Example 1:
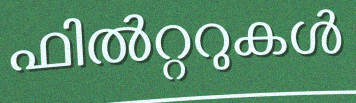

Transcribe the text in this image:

ഫിൽറ്ററുകൾ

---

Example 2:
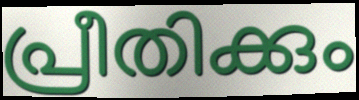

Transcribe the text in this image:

പ്രീതിക്കും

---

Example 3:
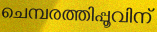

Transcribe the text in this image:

ചെമ്പരത്തിപ്പൂവിന്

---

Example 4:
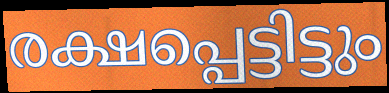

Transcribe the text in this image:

രക്ഷപ്പെട്ടിട്ടും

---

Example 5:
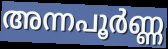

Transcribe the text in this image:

അന്നപൂർണ്ണ